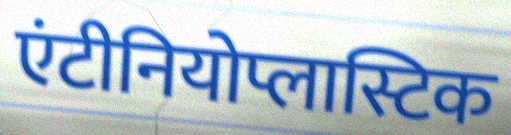
एंटीनियोप्लास्टिक